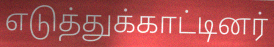
எடுத்துக்காட்டினர்